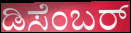
ಡಿಸೆಂಬರ್